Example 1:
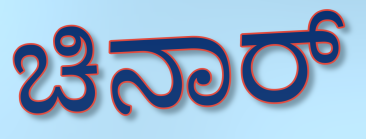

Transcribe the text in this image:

ಚಿನಾರ್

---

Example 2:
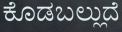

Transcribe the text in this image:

ಕೊಡಬಲ್ಲುದೆ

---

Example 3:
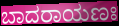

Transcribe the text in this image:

ಬಾದರಾಯಣಃ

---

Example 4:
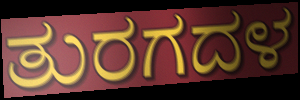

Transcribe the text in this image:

ತುರಗದಳ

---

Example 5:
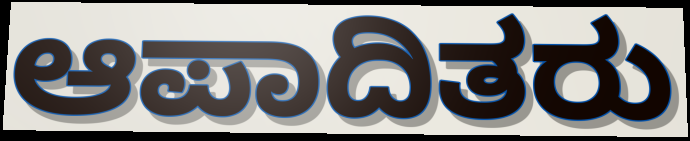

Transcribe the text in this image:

ಆಪಾದಿತರು